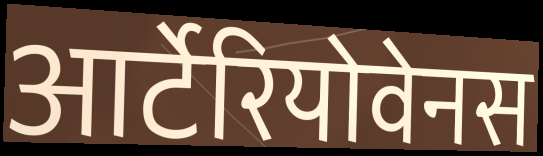
आर्टेरियोवेनस